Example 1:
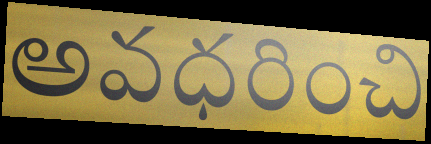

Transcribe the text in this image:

అవధరించి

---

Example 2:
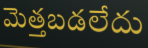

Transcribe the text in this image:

మెత్తబడలేదు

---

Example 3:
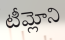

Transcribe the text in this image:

టీమ్లోని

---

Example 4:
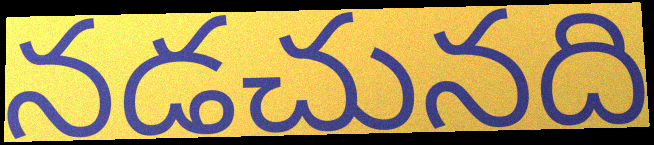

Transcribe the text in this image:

నడచునది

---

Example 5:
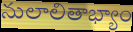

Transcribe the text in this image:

నులాలితాభ్యాం